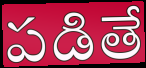
పడితే